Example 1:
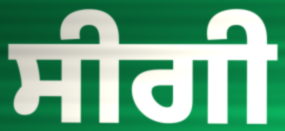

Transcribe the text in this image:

ਸੀਗੀ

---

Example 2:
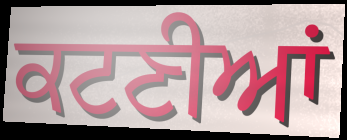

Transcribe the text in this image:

ਕਟਣੀਆਂ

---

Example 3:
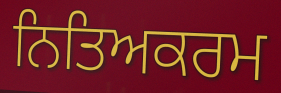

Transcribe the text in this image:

ਨਿਤਿਅਕਰਮ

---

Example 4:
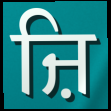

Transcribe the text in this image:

ਜ਼ਿ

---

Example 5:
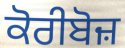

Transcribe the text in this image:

ਕੋਰੀਬੋਜ਼